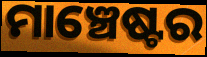
ମାଞ୍ଚେଷ୍ଟର